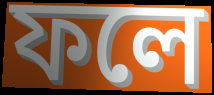
ফলে